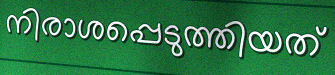
നിരാശപ്പെടുത്തിയത്